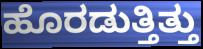
ಹೊರಡುತ್ತಿತ್ತು